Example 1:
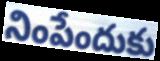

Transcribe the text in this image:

నింపేందుకు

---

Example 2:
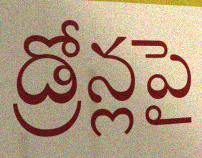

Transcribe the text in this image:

డ్రోన్లపై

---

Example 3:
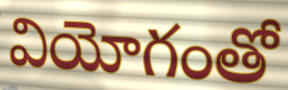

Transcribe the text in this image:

వియోగంతో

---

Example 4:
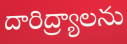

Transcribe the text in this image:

దారిద్ర్యాలను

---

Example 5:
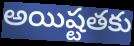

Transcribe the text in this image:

అయిష్టతకు